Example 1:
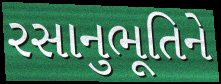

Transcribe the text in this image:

રસાનુભૂતિને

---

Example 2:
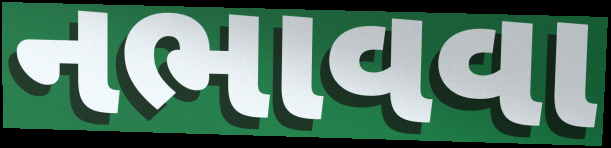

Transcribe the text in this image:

નભાવવા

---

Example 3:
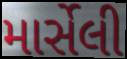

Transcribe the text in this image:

માર્સેલી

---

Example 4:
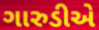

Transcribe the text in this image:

ગારુડીએ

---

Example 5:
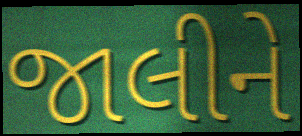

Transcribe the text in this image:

જાલીને